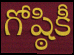
గోష్ఠికీ